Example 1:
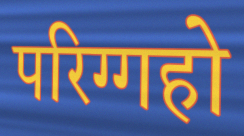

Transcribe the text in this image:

परिग्गहो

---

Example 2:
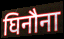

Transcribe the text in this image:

घिनौना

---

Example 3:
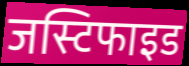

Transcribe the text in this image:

जस्टिफाइड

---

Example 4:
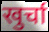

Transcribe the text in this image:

खुर्चा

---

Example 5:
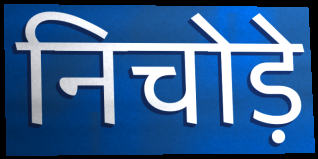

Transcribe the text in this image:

निचोड़े